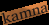
kamna